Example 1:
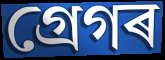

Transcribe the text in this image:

গ্ৰেগৰ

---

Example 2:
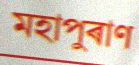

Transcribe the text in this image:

মহাপুৰাণ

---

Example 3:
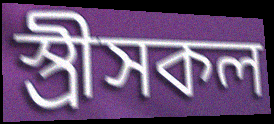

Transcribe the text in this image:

স্ত্ৰীসকল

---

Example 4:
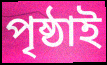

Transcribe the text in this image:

পৃষ্ঠাই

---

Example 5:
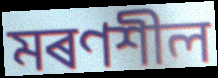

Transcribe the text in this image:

মৰণশীল